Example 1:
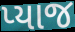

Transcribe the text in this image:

પ્યાજ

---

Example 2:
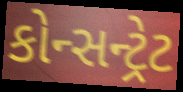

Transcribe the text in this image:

કોન્સન્ટ્રેટ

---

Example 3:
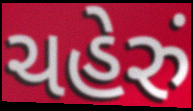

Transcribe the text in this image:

ચહેરું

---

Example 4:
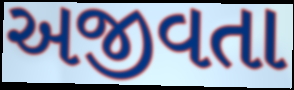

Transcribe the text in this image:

અજીવતા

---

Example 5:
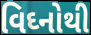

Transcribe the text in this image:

વિઘ્નોથી